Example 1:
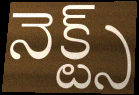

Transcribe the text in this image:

నెక్ట్స్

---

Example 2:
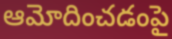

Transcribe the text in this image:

ఆమోదించడంపై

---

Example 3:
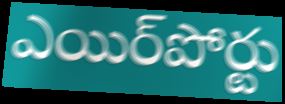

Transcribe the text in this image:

ఎయిర్‌పోర్టు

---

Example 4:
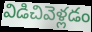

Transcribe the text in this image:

విడిచివెళ్లడం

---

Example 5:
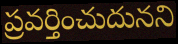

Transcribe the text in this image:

ప్రవర్తించుదునని